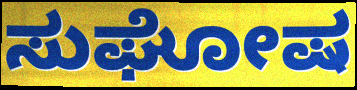
ಸುಘೋಷ